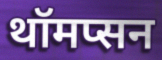
थॉमप्सन